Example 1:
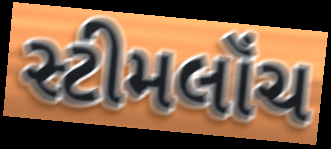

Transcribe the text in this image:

સ્ટીમલૉંચ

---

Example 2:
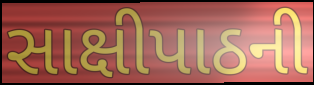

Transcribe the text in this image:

સાક્ષીપાઠની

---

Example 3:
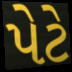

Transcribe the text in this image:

પેટે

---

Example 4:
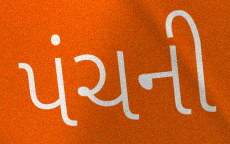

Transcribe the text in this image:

પંચની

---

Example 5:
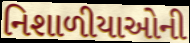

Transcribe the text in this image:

નિશાળીયાઓની